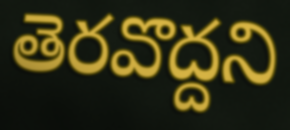
తెరవొద్దని